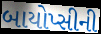
બાયોપ્સીની